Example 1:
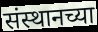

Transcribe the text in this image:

संस्थानच्या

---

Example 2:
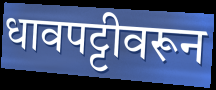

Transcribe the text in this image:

धावपट्टीवरून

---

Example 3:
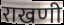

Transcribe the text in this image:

राखणी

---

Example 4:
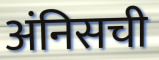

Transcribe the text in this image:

अंनिसची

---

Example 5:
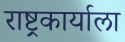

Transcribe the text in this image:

राष्ट्रकार्याला